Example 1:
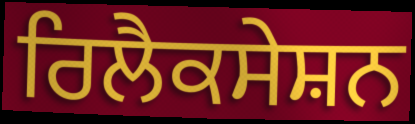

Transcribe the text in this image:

ਰਿਲੈਕਸੇਸ਼ਨ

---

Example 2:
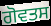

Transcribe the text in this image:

ਗੋਵਤਸ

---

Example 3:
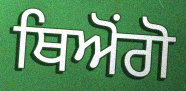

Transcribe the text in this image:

ਥਿਅੋਂਗੋ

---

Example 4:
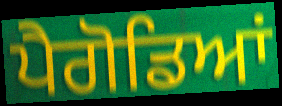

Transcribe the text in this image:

ਪੈਗੋਡਿਆਂ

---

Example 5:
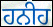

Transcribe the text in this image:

ਹਨੀਹ